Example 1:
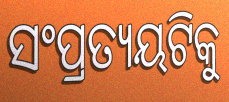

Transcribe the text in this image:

ସଂପ୍ରତ୍ୟୟଟିକୁ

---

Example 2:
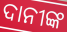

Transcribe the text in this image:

ଦାନୀଙ୍କ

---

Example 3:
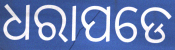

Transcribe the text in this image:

ଧରାପଡେ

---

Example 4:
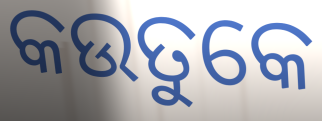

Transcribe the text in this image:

କଉତୁକେ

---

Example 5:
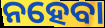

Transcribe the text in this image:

ନହେବା